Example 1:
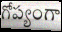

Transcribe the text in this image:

గోప్యంగా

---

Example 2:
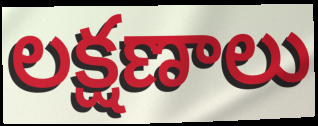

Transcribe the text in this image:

లక్షణాలు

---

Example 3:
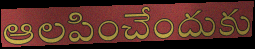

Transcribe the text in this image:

ఆలపించేందుకు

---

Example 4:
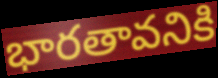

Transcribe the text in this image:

భారతావనికి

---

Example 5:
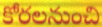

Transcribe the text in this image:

కోరలనుంచి